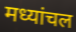
मध्यांचल